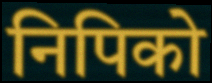
निपिको